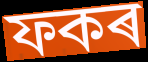
ফকৰ